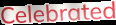
Celebrated